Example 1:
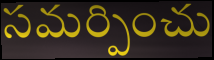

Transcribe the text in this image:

సమర్పించు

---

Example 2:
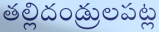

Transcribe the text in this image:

తల్లిదండ్రులపట్ల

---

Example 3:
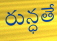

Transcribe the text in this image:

రున్ధతే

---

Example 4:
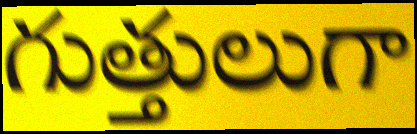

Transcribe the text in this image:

గుత్తులుగా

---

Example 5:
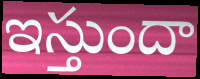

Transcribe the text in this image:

ఇస్తుందా